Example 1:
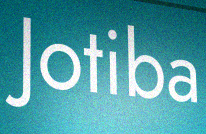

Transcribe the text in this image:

Jotiba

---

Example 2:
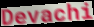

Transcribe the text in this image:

Devachi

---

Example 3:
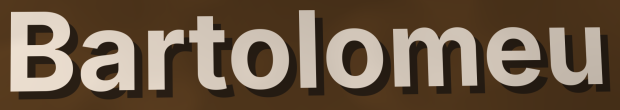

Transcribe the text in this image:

Bartolomeu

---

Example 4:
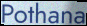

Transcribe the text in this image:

Pothana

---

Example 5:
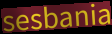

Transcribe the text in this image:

sesbania